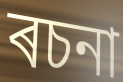
ৰচনা